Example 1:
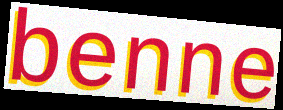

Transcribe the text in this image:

benne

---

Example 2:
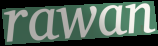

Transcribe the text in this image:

rawan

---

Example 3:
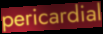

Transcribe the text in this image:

pericardial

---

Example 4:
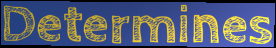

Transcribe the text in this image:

Determines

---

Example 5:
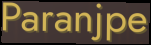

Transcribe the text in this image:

Paranjpe